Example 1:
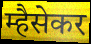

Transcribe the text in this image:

म्हैसेकर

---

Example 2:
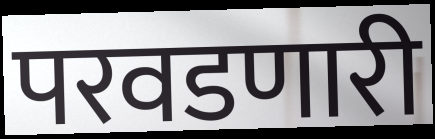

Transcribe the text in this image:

परवडणारी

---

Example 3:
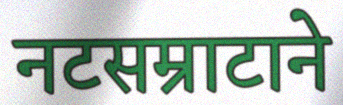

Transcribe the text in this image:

नटसम्राटाने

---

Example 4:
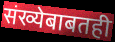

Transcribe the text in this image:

संख्येबाबतही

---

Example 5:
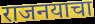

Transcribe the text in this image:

राजनयाचा